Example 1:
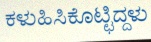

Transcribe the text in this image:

ಕಳುಹಿಸಿಕೊಟ್ಟಿದ್ದಳು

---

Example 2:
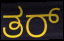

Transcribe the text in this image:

ತರ್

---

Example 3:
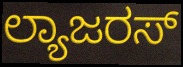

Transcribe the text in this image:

ಲ್ಯಾಜರಸ್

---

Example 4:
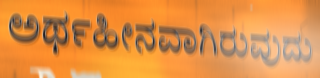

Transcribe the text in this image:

ಅರ್ಥಹೀನವಾಗಿರುವುದು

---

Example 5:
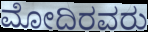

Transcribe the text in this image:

ಮೋದಿರವರು